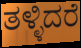
ತಳ್ಳಿದರೆ